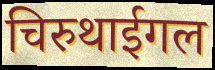
चिरुथाईगल